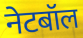
नेटबॉल